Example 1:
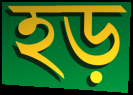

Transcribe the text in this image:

হড়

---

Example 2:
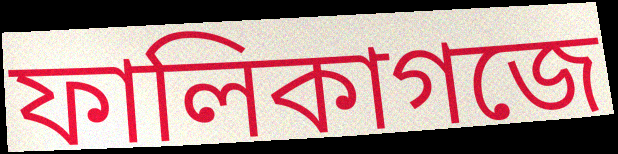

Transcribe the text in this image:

ফালিকাগজে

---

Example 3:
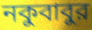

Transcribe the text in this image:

নকুবাবুর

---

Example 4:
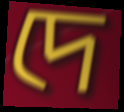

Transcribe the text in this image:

দে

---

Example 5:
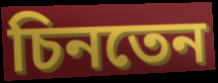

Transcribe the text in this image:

চিনতেন